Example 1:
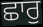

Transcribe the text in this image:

ਛਾਰੁ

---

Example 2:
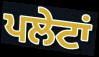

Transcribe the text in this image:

ਪਲੇਟਾਂ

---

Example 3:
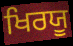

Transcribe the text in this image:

ਖਿਰਯੂ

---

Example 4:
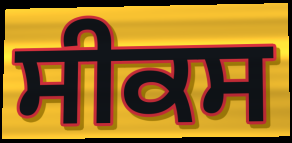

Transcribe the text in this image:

ਸੀਕਸ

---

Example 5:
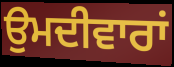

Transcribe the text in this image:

ਉਮਦੀਵਾਰਾਂ